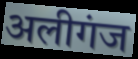
अलीगंज